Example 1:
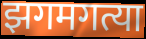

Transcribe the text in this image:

झगमगत्या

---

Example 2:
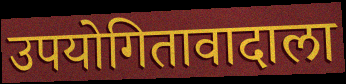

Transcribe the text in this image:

उपयोगितावादाला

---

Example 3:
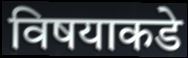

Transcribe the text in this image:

विषयाकडे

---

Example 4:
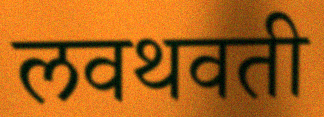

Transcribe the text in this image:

लवथवती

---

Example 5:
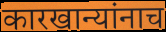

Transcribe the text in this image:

कारखान्यांनाच